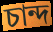
চান্দ